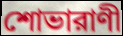
শোভারাণী